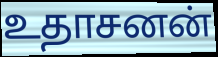
உதாசனன்